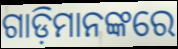
ଗାଡ଼ିମାନଙ୍କରେ